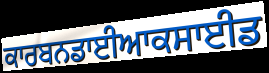
ਕਾਰਬਨਡਾਈਆਕਸਾਈਡ